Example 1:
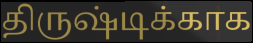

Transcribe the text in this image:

திருஷ்டிக்காக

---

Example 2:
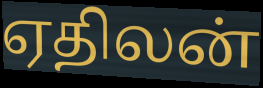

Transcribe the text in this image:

ஏதிலன்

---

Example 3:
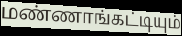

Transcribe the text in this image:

மண்ணாங்கட்டியும்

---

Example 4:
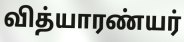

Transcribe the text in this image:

வித்யாரண்யர்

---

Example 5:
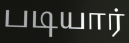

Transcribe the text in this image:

படியார்